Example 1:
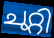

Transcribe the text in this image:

ചുറ്റി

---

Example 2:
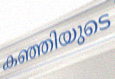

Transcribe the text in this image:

കഞ്ഞിയുടെ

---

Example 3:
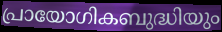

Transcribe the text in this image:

പ്രായോഗികബുദ്ധിയും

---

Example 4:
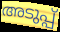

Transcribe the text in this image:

അടുപ്പ്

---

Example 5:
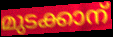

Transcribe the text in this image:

മുടക്കാന്